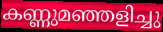
കണ്ണുമഞ്ഞളിച്ചു